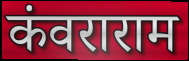
कंवराराम